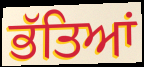
ਭੱਤਿਆਂ